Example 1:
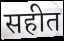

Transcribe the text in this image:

सहीत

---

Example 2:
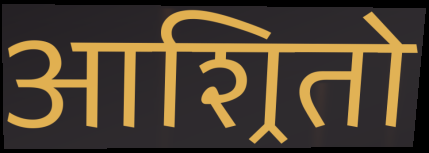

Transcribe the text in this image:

आश्रितो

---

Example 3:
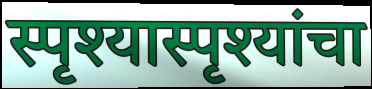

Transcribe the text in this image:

स्पृश्यास्पृश्यांचा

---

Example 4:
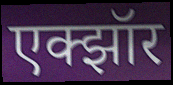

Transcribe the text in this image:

एक्झॉर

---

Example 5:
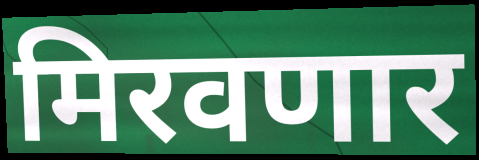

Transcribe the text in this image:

मिरवणार